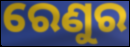
ରେଣୁର